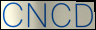
CNCD